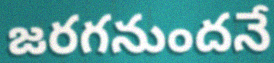
జరగనుందనే